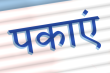
पकाएं